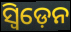
ସ୍ବିଡ଼େନ